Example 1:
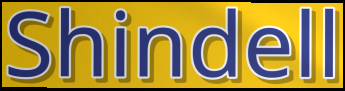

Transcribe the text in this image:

Shindell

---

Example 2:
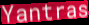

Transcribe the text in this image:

Yantras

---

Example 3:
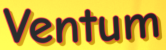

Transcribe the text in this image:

Ventum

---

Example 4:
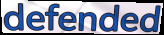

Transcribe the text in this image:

defended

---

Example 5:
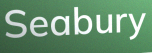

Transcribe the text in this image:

Seabury